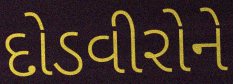
દોડવીરોને